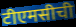
टीएमसीची